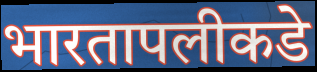
भारतापलीकडे